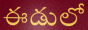
ఈడులో